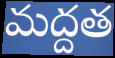
మద్దత